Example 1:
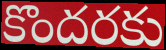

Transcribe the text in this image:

కొందరకు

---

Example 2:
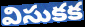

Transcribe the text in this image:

విసుకక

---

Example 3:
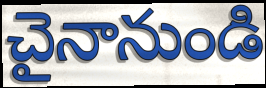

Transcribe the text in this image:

చైనానుండి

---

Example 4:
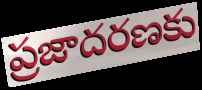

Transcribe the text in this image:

ప్రజాదరణకు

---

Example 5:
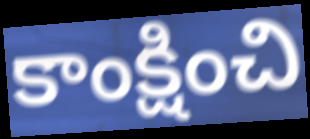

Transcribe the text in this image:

కాంక్షించి